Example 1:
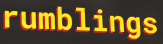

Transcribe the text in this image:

rumblings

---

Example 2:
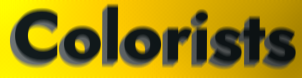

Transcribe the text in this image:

Colorists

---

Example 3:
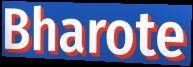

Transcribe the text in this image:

Bharote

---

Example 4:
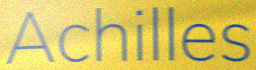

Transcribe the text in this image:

Achilles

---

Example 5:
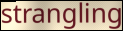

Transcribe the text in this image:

strangling